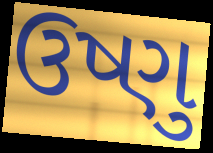
ઉષ્ણુ